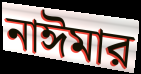
নাঈমার